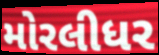
મોરલીધર